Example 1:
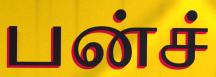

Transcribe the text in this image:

பன்ச்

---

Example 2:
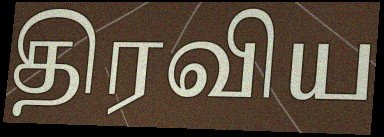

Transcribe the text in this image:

திரவிய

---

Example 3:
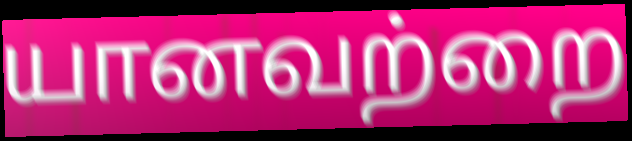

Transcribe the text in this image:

யானவற்றை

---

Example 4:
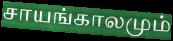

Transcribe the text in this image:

சாயங்காலமும்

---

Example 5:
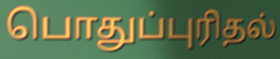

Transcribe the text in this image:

பொதுப்புரிதல்